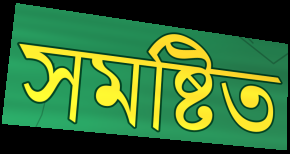
সমষ্টিত